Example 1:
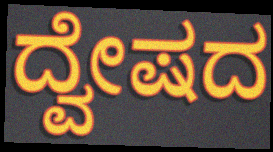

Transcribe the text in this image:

ದ್ವೇಷದ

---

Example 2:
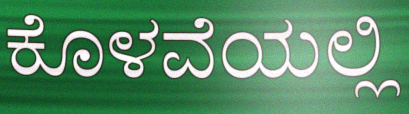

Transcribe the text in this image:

ಕೊಳವೆಯಲ್ಲಿ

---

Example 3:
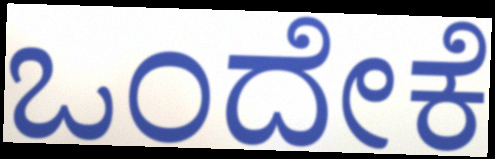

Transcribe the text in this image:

ಒಂದೇಕೆ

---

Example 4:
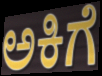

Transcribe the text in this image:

ಅಕಿಗೆ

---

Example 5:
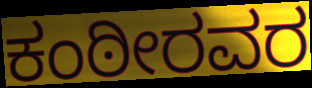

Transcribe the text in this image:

ಕಂಠೀರವರ